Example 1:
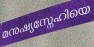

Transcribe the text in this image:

മനുഷ്യസ്നേഹിയെ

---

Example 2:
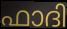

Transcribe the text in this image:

ഫാദി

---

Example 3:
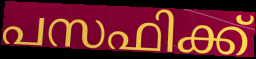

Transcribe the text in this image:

പസഫിക്ക്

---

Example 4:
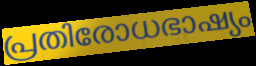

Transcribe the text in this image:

പ്രതിരോധഭാഷ്യം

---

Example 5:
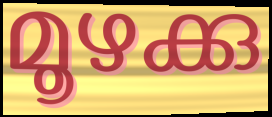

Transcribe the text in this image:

മൂഴക്കു